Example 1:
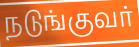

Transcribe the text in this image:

நடுங்குவர்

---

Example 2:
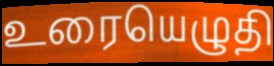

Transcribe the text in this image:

உரையெழுதி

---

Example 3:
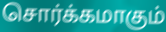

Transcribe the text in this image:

சொர்க்கமாகும்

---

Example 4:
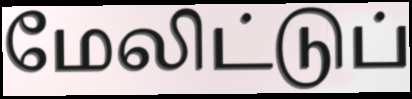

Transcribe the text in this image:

மேலிட்டுப்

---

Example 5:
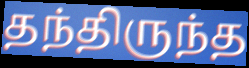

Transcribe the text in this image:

தந்திருந்த